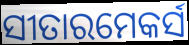
ସୀତାରମେକର୍ସ